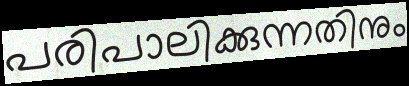
പരിപാലിക്കുന്നതിനും